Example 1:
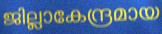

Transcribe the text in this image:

ജില്ലാകേന്ദ്രമായ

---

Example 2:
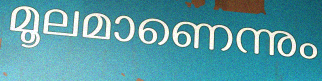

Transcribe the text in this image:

മൂലമാണെന്നും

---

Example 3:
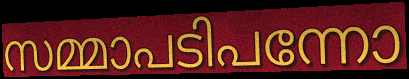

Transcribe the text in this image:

സമ്മാപടിപന്നോ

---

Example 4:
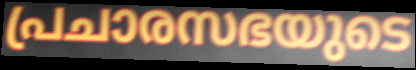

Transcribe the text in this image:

പ്രചാരസഭയുടെ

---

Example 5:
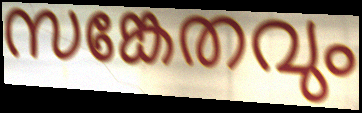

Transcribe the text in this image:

സങ്കേതവും